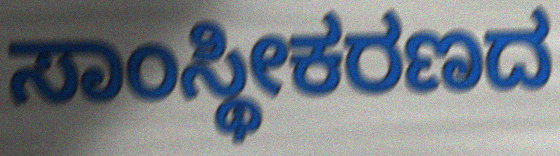
ಸಾಂಸ್ಥೀಕರಣದ